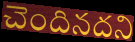
చెందినదని